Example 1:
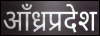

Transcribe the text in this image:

आँध्रप्रदेश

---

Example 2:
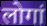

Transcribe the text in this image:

लोगां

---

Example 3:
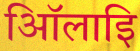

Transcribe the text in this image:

ऑिलाइि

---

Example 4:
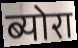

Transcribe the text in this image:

ब्योरा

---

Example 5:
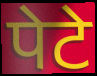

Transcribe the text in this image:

पेटे